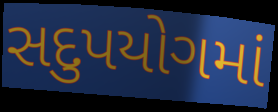
સદુપયોગમાં